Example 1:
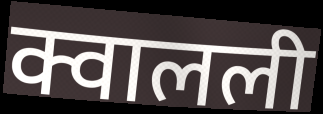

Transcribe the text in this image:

क्वालली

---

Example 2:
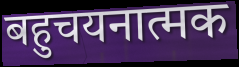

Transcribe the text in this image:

बहुचयनात्मक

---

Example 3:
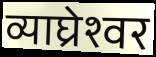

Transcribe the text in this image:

व्याघ्रेश्वर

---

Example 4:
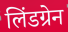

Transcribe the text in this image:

लिंडग्रेन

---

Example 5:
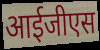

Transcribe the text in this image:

आईजीएस